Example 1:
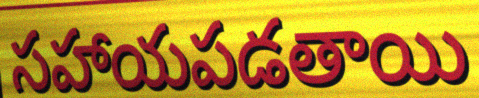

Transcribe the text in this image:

సహాయపడతాయి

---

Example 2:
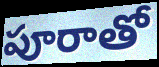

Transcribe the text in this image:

పూరాతో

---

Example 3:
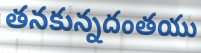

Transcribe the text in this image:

తనకున్నదంతయు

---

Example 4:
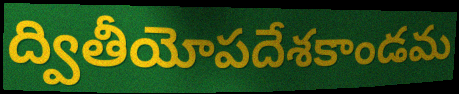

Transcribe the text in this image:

ద్వితీయోపదేశకాండమ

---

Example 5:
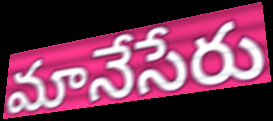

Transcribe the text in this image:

మానేసేరు